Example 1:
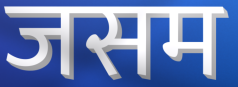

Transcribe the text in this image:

जसम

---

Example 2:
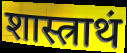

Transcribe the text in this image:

शास्त्राथं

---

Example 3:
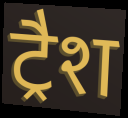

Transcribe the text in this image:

ट्रैश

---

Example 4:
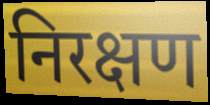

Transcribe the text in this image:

निरक्षण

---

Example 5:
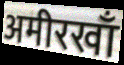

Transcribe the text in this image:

अमीरखाँ